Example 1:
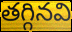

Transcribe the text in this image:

తగ్గినవి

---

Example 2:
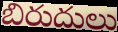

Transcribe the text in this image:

బిరుదులు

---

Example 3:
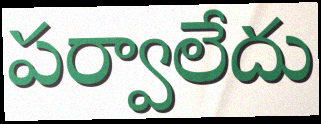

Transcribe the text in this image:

పర్వాలేదు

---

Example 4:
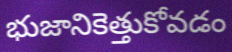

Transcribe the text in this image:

భుజానికెత్తుకోవడం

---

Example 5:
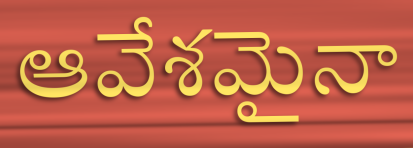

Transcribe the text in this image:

ఆవేశమైనా